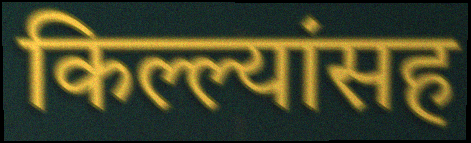
किल्ल्यांसह